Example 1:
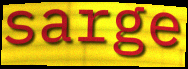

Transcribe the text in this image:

sarge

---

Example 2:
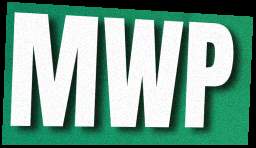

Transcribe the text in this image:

MWP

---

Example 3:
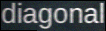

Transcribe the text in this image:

diagonal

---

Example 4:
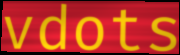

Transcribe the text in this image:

vdots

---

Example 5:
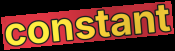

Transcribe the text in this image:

constant